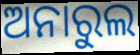
ଅନାରୁଲ